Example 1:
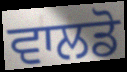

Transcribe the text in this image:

ਵਾਲਡੋ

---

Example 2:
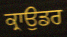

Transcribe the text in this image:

ਕ੍ਰਾਉਡਰ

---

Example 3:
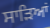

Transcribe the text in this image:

ਸਾੜਿਆਂ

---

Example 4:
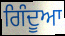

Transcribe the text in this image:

ਗਿੰਦੂਆ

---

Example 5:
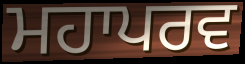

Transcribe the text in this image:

ਮਹਾਪਰਵ